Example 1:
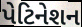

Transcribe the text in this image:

પેટિનેશન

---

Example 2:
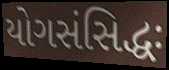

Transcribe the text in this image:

યોગસંસિદ્ધઃ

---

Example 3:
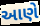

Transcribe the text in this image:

આણે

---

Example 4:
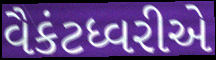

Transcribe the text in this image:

વૈકંટધ્વરીએ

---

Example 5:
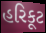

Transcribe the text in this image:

હરિકૂટ